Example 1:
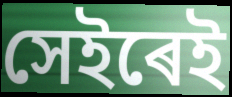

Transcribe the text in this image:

সেইৰেই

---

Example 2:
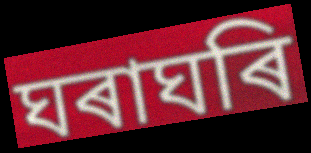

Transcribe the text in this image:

ঘৰাঘৰি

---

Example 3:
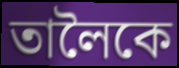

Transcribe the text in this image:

তালৈকে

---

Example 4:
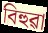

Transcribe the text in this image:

বিহুৱা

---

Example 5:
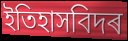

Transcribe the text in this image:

ইতিহাসবিদৰ